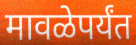
मावळेपर्यंत